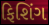
ફિશિંગ